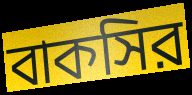
বাকসির